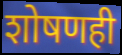
शोषणही